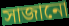
সাজানো